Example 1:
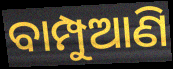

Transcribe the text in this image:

ବାମ୍ପୁଆଣି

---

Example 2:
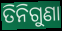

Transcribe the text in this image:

ତିନିଗୁଣା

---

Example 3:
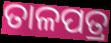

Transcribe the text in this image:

ତାଳପତ୍ର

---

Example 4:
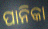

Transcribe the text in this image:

ପାନିକା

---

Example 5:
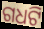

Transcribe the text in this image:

ଗଧଟି